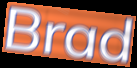
Brad